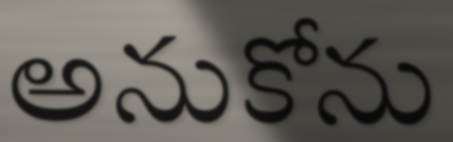
అనుకోను